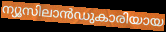
ന്യൂസിലാൻഡുകാരിയായ